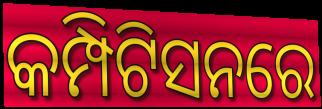
କମ୍ପିଟିସନରେ